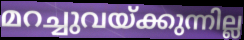
മറച്ചുവയ്ക്കുന്നില്ല